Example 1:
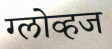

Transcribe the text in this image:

ग्लोव्हज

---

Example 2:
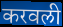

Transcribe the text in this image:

करवली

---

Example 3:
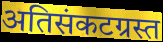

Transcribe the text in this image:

अतिसंकटग्रस्त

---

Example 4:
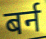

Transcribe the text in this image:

बर्न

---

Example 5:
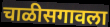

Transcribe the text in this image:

चाळीसगावला